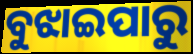
ବୁଝାଇପାରୁ